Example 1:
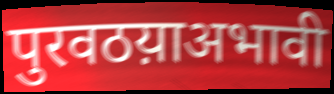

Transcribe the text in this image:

पुरवठय़ाअभावी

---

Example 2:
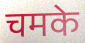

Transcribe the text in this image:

चमके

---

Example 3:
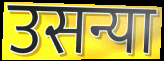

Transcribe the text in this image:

उसन्या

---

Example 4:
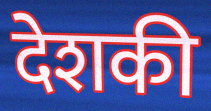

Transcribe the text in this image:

देशकी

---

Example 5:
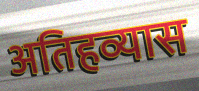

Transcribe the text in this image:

अतिहव्यास